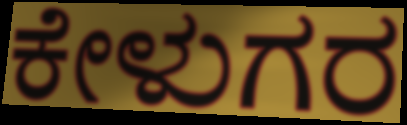
ಕೇಳುಗರ